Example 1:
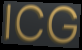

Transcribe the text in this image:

ICG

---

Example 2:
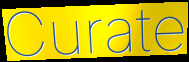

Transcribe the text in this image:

Curate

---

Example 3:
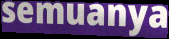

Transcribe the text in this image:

semuanya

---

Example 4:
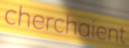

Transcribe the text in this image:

cherchaient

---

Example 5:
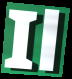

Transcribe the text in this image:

Il